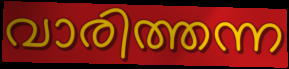
വാരിത്തന്ന